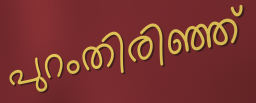
പുറംതിരിഞ്ഞ്